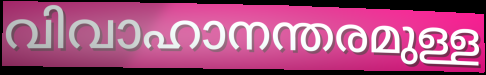
വിവാഹാനന്തരമുള്ള